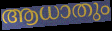
ആധാതും